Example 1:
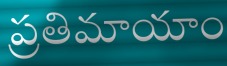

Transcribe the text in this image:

ప్రతిమాయాం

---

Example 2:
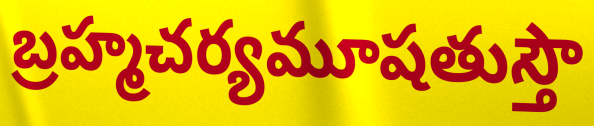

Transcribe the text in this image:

బ్రహ్మచర్యమూషతుస్తౌ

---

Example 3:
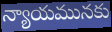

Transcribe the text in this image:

న్యాయమునకు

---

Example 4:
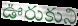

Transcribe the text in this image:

ఊరుకుని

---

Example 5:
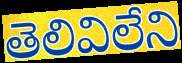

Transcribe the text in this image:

తెలివిలేని